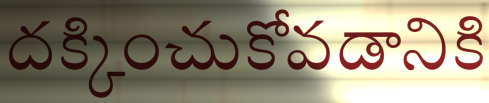
దక్కించుకోవడానికి